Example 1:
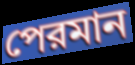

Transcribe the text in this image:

পেরমান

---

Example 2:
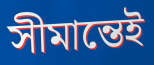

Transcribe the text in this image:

সীমান্তেই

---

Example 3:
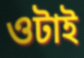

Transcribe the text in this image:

ওটাই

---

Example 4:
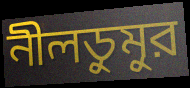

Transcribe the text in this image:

নীলডুমুর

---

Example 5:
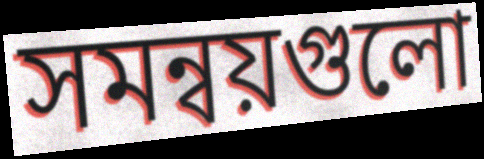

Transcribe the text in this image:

সমন্বয়গুলো